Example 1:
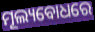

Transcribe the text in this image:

ମୂଲ୍ୟବୋଧରେ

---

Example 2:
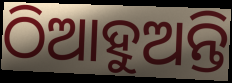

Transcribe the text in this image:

ଠିଆହୁଅନ୍ତି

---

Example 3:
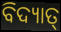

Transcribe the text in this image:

ବିଦ୍ୟାତ୍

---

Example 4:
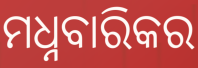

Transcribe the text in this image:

ମଧ୍ନବାରିକର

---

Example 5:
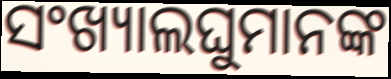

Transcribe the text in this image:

ସଂଖ୍ୟାଲଘୁମାନଙ୍କ